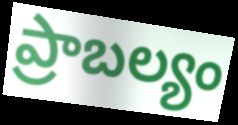
ప్రాబల్యం